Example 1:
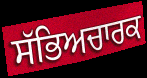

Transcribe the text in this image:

ਸੱਭਿਅਚਾਰਕ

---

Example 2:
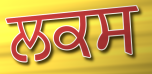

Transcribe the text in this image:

ਲਕਸ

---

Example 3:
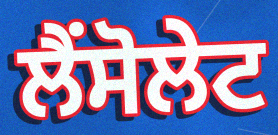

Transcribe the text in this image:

ਲੈਂਸੋਲੇਟ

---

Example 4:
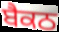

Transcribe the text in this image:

ਬੈਕਠ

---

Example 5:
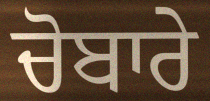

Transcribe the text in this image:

ਚੋਬਾਰੇ